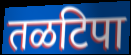
तळटिपा